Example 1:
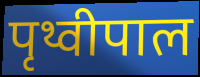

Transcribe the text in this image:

पृथ्वीपाल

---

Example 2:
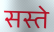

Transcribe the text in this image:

सस्‍ते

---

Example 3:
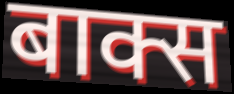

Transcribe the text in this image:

बाक्स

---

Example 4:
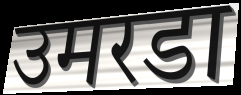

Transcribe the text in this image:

उमरडा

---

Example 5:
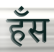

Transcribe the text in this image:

हँस